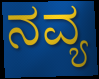
ನವ್ಯ